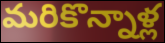
మరికొన్నాళ్ల